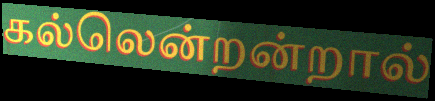
கல்லென்றன்றால்